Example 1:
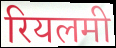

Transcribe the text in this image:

रियलमी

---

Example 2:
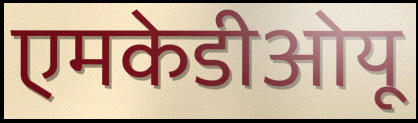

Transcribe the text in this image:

एमकेडीओयू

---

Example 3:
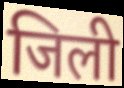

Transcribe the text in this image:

जिली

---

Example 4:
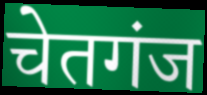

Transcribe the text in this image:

चेतगंज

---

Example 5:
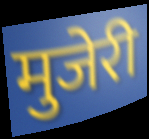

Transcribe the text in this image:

मुजेरी